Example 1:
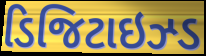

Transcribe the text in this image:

ડિજિટાઇઝ્ડ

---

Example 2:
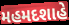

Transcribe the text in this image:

મહમદશાહે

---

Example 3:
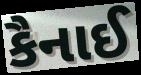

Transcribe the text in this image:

કૈનાઈ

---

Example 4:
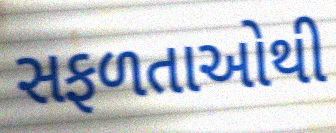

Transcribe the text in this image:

સફળતાઓથી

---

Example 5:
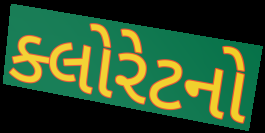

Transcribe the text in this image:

ક્લોરેટનો